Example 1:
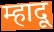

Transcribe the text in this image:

म्हादू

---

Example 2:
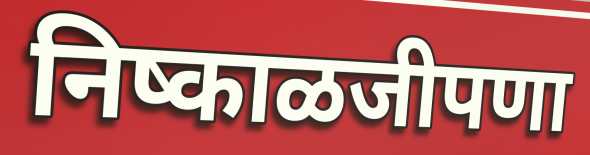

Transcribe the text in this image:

निष्काळजीपणा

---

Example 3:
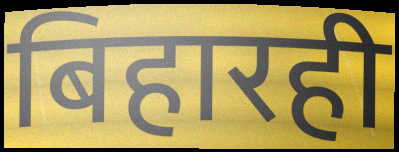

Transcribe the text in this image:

बिहारही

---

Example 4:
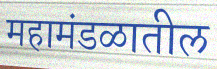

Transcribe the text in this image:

महामंडळातील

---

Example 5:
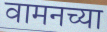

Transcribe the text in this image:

वामनच्या